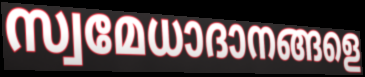
സ്വമേധാദാനങ്ങളെ